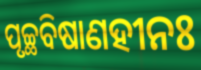
ପୃଚ୍ଛବିଷାଣହୀନଃ